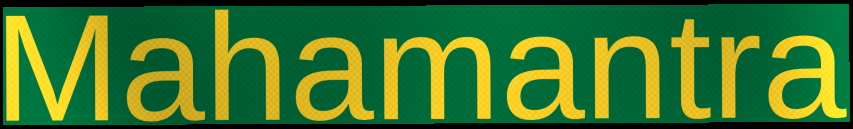
Mahamantra